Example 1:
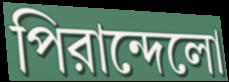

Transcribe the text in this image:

পিরান্দেলো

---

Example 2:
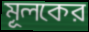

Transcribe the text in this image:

মূলকের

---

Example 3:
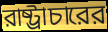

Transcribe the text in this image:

রাষ্ট্রাচারের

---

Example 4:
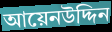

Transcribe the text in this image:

আয়েনউদ্দিন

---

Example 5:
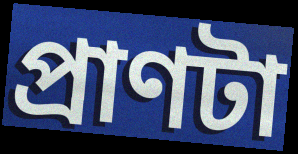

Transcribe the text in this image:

প্রাণটা